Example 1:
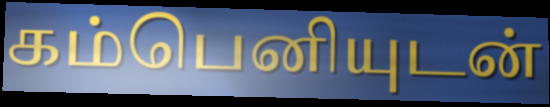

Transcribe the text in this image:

கம்பெனியுடன்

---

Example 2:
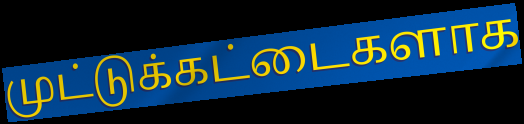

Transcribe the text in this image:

முட்டுக்கட்டைகளாக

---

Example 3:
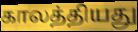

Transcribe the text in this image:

காலத்தியது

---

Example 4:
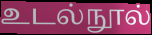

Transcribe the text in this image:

உடல்நூல்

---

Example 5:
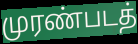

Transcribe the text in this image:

முரண்படத்